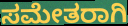
ಸಮೇತರಾಗಿ